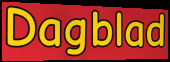
Dagblad